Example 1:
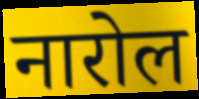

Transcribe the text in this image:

नारोल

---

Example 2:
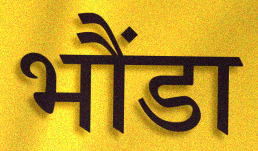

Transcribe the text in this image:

भौंडा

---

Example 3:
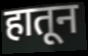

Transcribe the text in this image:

हातून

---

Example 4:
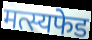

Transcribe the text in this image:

मत्स्यफेड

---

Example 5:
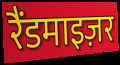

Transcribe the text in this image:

रैंडमाइज़र